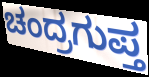
ಚಂದ್ರಗುಪ್ತ